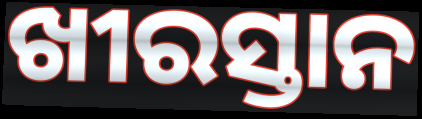
ଖୀରସ୍ତାନ